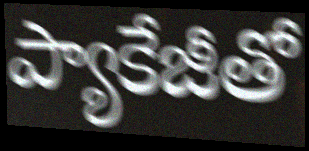
ప్యాకేజీతో